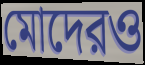
মোদেরও